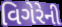
વિગેરેની